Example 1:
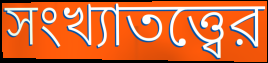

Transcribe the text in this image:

সংখ্যাতত্ত্বের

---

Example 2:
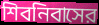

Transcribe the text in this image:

শিবনিবাসের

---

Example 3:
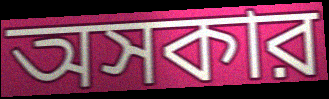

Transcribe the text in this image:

অসকার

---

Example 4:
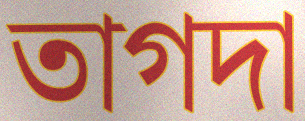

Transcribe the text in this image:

তাগদা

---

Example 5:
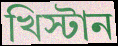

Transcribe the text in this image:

খিস্টান